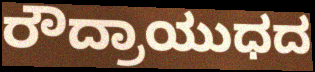
ರೌದ್ರಾಯುಧದ